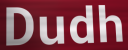
Dudh